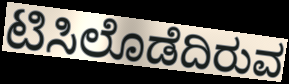
ಟಿಸಿಲೊಡೆದಿರುವ